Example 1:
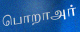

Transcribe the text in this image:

பொறாஅர்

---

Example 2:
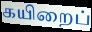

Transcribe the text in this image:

கயிறைப்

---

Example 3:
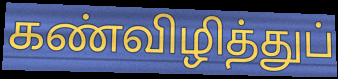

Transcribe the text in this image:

கண்விழித்துப்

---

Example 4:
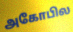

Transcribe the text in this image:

அகோபில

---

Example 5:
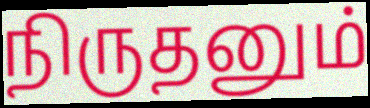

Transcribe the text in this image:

நிருதனும்